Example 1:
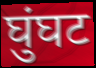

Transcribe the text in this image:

घुंघट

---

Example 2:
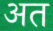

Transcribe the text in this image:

अत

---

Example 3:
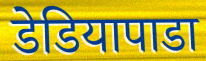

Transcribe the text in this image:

डेडियापाडा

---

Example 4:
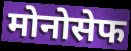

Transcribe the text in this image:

मोनोसेफ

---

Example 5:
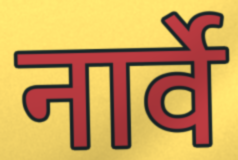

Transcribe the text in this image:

नार्वे